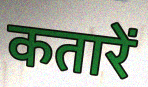
कतारें